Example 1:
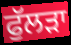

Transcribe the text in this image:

ਫੁੱਲੜਾ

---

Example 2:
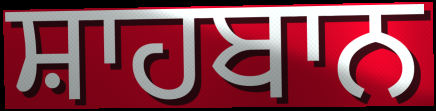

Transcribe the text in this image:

ਸ਼ਾਹਬਾਨ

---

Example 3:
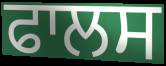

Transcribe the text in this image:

ਫਾਲਸ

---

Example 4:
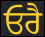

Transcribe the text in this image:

ਓਰੈ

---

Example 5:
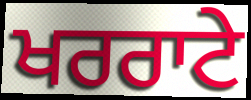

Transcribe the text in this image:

ਖਰਰਾਟੇ